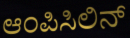
ಆಂಪಿಸಿಲಿನ್